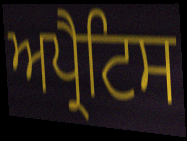
ਅਪ੍ਰੈਟਿਸ